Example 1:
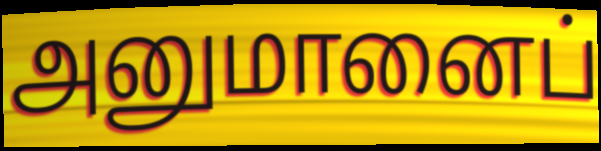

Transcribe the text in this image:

அனுமானைப்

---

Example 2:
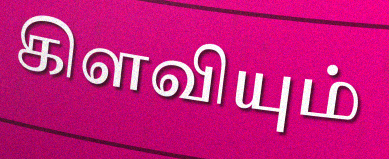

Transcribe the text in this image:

கிளவியும்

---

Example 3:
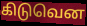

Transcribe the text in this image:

கிடுவென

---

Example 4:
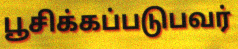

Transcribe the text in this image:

பூசிக்கப்படுபவர்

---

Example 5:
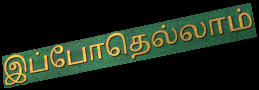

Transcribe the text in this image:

இப்போதெல்லாம்